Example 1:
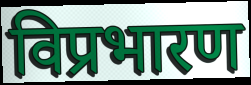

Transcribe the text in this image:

विप्रभारण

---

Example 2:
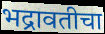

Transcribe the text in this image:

भद्रावतीचा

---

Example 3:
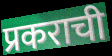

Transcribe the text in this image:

प्रकराची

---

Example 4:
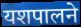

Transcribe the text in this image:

यशपालने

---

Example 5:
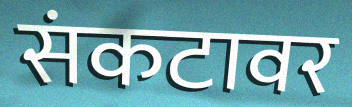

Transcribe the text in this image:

संकटावर